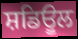
ਸ਼ਡਿਊਲ